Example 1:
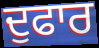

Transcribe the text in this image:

ਦੁਫਾਰ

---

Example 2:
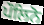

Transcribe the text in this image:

ਪੌਲਿਨੋ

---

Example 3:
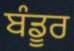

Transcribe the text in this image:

ਬੰਡੂਰ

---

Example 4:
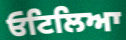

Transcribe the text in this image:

ਓਟਿਲਿਆ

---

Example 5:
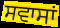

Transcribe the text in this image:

ਸਵਾਸਾਂ